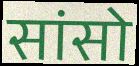
सांसो